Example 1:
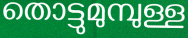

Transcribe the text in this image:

തൊട്ടുമുമ്പുള്ള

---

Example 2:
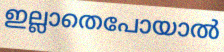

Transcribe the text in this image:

ഇല്ലാതെപോയാൽ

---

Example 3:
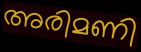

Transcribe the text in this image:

അരിമണി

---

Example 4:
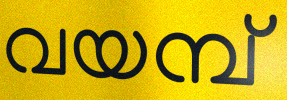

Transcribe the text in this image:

വയമ്പ്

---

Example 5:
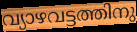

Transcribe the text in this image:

വ്യാഴവട്ടത്തിനു